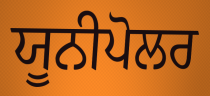
ਯੂਨੀਪੋਲਰ